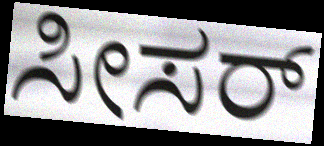
ಸೀಸರ್